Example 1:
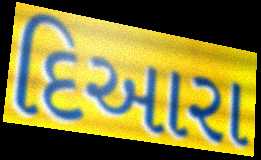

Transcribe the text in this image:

દિઆરા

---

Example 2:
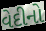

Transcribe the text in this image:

વેદીનો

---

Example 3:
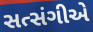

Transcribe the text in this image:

સત્સંગીએ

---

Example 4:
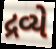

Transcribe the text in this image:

દ્રવ્યે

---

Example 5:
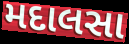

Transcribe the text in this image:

મદાલસા